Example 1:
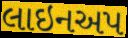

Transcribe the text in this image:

લાઇનઅપ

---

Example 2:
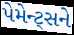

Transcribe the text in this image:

પેમેન્ટ્સને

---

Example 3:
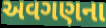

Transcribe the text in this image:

અવગણના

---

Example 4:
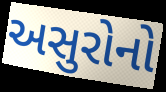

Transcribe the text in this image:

અસુરોનો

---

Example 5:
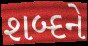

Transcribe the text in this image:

શબ્દને